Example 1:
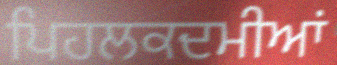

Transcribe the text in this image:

ਪਿਹਲਕਦਮੀਆਂ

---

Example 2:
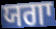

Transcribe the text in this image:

ਯਗਾ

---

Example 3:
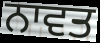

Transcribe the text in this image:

ਨਾਵਤ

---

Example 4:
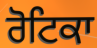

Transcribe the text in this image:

ਰੋਟਿਕਾ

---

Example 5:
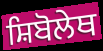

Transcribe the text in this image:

ਸ਼ਿਬੋਲੇਥ